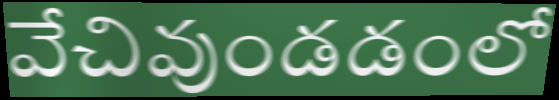
వేచివుండడంలో